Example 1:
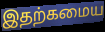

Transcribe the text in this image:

இதற்கமைய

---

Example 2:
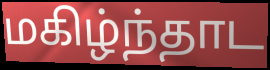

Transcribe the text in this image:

மகிழ்ந்தாட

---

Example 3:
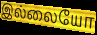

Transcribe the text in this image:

இல்லையோ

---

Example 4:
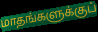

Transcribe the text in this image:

மாதங்களுக்குப்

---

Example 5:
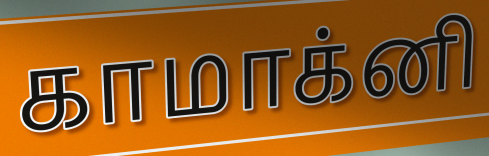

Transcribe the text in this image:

காமாக்னி